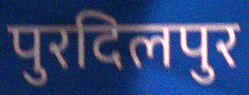
पुरदिलपुर